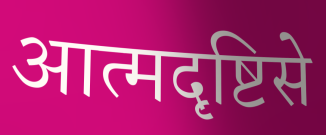
आत्मदृष्टिसे